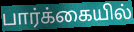
பார்க்கையில்